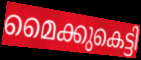
മൈക്കുകെട്ടി